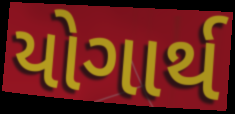
યોગાર્થ